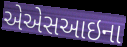
એએસઆઇના